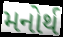
મનોર્થ